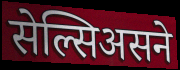
सेल्सिअसने